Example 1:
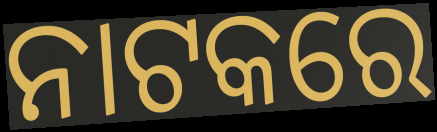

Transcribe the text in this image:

ନାଟକରେ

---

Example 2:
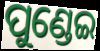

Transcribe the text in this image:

ପୁଣ୍ଡେଇ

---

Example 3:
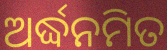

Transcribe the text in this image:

ଅର୍ଦ୍ଧନମିତ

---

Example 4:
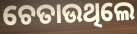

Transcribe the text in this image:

ଚେତାଉଥିଲେ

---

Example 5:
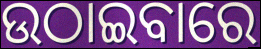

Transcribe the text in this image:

ଉଠାଇବାରେ